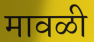
मावळी